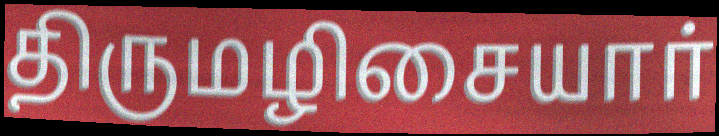
திருமழிசையார்